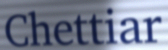
Chettiar